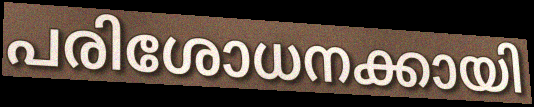
പരിശോധനക്കായി